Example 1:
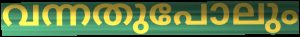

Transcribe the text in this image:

വന്നതുപോലും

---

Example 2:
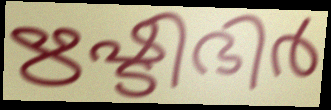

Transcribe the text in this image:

ഋഷ്ടിഭിർ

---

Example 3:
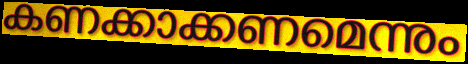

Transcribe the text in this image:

കണക്കാക്കണമെന്നും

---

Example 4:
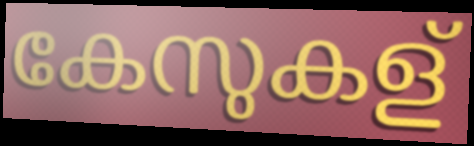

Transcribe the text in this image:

കേസുകള്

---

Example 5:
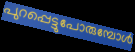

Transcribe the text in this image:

പുറപ്പെട്ടുപോരുമ്പോൾ